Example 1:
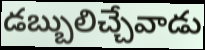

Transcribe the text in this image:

డబ్బులిచ్చేవాడు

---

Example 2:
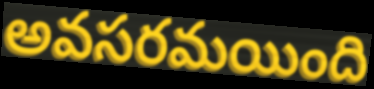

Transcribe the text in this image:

అవసరమయింది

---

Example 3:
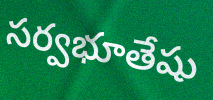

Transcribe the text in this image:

సర్వభూతేషు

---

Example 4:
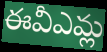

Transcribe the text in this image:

ఈవీఎమ్ల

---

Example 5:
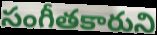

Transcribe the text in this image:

సంగీతకారుని